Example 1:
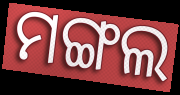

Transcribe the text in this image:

ମଙ୍ଗଲ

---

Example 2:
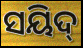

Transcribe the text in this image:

ସୟିଦ୍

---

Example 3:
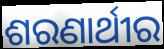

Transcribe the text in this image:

ଶରଣାର୍ଥୀର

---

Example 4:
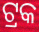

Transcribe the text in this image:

ଟ୍ରକ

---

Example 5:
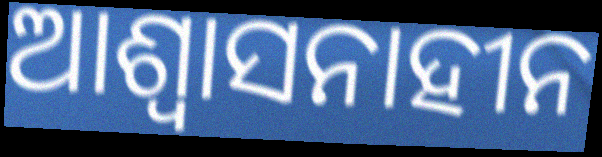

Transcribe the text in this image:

ଆଶ୍ୱାସନାହୀନ